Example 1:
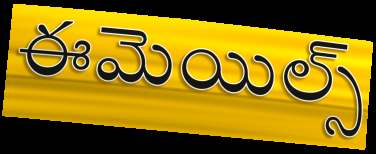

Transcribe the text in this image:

ఈమెయిల్స్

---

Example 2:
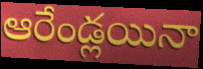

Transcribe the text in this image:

ఆరేండ్లయినా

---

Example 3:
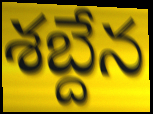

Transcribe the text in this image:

శబ్దేన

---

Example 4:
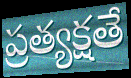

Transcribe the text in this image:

ప్రత్యక్షతే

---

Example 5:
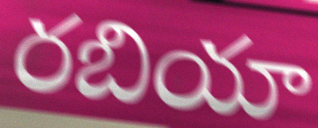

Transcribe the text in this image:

రబియా